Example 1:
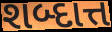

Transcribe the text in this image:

શબ્દાત્ત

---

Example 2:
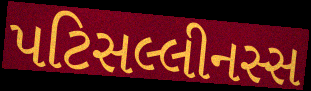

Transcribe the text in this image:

પટિસલ્લીનસ્સ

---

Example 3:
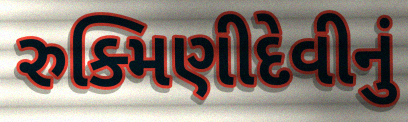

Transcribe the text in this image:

રુક્મિણીદેવીનું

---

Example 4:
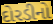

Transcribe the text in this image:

દોરડીનો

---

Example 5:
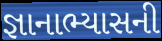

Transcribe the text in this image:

જ્ઞાનાભ્યાસની